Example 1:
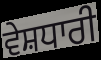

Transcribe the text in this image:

ਵੇਸ਼ਧਾਰੀ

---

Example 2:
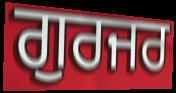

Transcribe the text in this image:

ਗੁਰਜਰ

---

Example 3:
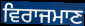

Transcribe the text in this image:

ਵਿਰਾਜਮਾਣ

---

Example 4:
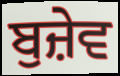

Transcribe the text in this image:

ਬੁਜ਼ੇਵ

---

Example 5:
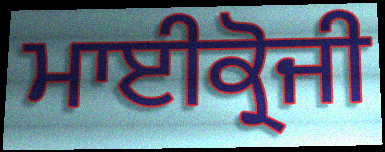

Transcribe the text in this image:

ਮਾਈਕ੍ਰੋਜੀ